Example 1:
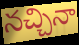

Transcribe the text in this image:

నచ్చినా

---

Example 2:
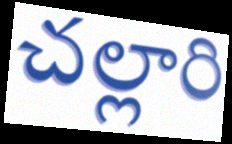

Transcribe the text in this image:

చల్లారి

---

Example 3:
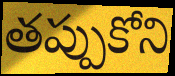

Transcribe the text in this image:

తప్పుకోని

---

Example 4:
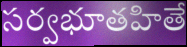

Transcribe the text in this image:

సర్వభూతహితే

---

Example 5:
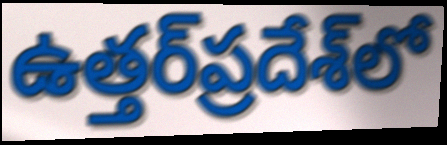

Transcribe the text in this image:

ఉత్తర్‌ప్రదేశ్‌లో